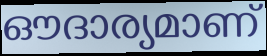
ഔദാര്യമാണ്